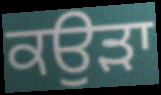
ਕਉੜਾ